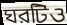
ঘরটিও